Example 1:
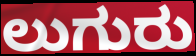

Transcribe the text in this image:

ಲುಗುರು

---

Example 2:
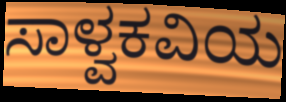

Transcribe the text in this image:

ಸಾಳ್ವಕವಿಯ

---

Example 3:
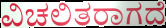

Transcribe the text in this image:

ವಿಚಲಿತರಾಗದೆ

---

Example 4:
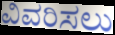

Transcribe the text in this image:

ವಿವರಿಸಲು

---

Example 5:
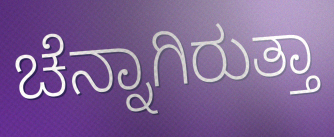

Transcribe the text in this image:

ಚೆನ್ನಾಗಿರುತ್ತಾ